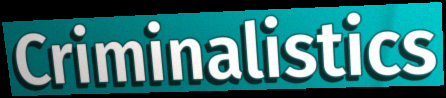
Criminalistics